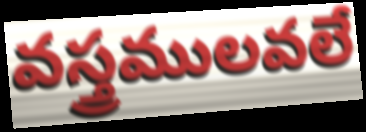
వస్త్రములవలే